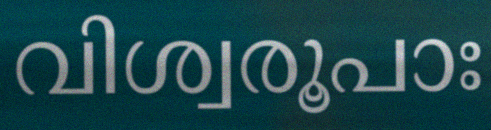
വിശ്വരൂപാഃ